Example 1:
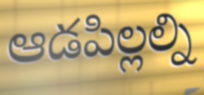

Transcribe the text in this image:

ఆడపిల్లల్ని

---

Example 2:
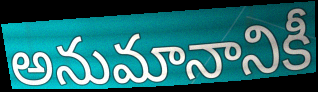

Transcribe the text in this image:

అనుమానానికీ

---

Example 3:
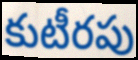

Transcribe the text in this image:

కుటీరపు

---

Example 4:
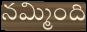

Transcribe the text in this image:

నమ్మింది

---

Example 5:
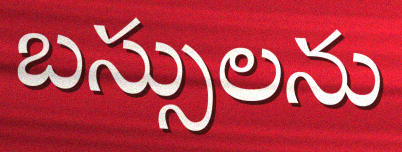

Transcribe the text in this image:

బస్సులను